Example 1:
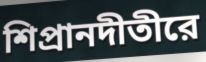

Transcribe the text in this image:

শিপ্রানদীতীরে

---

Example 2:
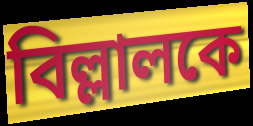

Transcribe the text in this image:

বিল্লালকে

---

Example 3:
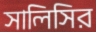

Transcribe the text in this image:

সালিসির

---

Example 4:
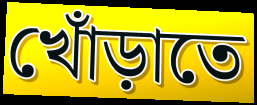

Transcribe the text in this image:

খোঁড়াতে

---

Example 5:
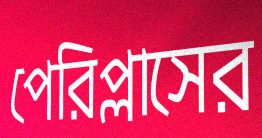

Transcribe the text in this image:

পেরিপ্লাসের